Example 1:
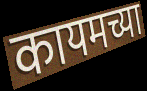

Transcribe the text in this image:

कायमच्या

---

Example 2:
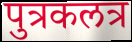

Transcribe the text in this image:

पुत्रकलत्र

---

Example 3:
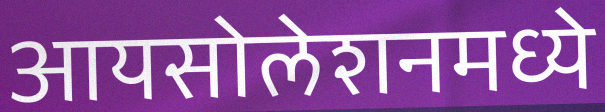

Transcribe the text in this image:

आयसोलेशनमध्ये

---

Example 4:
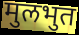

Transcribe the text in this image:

मुलभुत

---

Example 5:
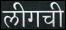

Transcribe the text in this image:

लीगची